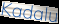
Kadalu